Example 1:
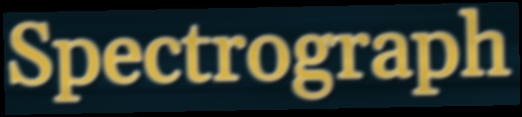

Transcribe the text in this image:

Spectrograph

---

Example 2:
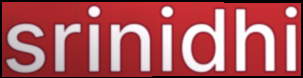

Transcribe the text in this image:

srinidhi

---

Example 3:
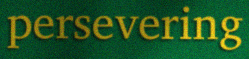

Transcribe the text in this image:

persevering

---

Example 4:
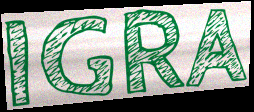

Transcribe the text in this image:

IGRA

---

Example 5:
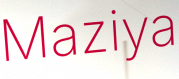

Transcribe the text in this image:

Maziya